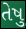
તેષુ